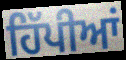
ਹਿੱਪੀਆਂ